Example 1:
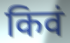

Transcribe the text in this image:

किवं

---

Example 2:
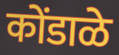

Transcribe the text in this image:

कोंडाळे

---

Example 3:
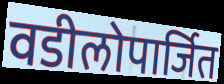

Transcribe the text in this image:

वडीलोपार्जित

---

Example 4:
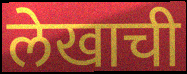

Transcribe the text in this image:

लेखाची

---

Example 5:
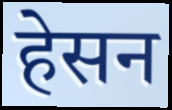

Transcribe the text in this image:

हेसन